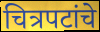
चित्रपटांचे